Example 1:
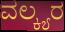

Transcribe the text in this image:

ವಲ್ಕ್ಯರ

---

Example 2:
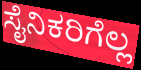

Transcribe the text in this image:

ಸೈನಿಕರಿಗೆಲ್ಲ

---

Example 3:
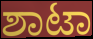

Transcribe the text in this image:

ಶಾಟಾ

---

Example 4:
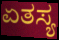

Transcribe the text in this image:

ಏತಸ್ಯ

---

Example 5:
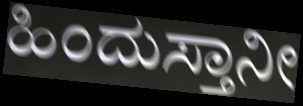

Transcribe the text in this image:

ಹಿಂದುಸ್ತಾನೀ